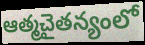
ఆత్మచైతన్యంలో